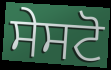
ਸੇਸਟੋ